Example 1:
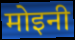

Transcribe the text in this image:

मोइनी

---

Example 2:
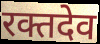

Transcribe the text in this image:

रक्तदेव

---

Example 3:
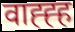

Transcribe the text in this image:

वाह्ह्ह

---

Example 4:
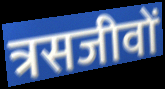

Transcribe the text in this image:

त्रसजीवों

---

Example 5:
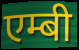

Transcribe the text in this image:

एम्बी